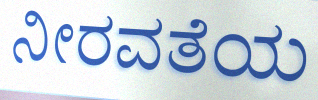
ನೀರವತೆಯ